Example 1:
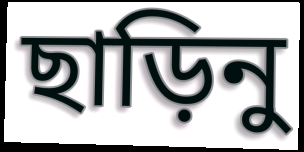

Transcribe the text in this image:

ছাড়িনু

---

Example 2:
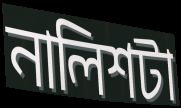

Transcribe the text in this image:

নালিশটা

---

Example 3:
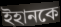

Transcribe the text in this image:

ইহানকে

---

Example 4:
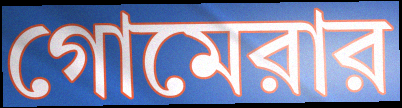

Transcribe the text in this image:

গোমেরার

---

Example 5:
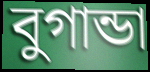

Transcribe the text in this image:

বুগান্ডা